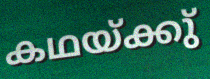
കഥയ്ക്കു്